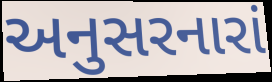
અનુસરનારાં